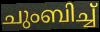
ചുംബിച്ച്